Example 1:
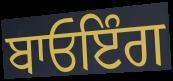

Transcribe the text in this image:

ਬਾਓਇੰਗ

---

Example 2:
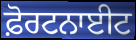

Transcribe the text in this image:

ਫ਼ੋਰਟਨਾਈਟ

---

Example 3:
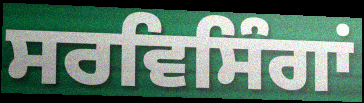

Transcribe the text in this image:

ਸਰਵਿਸਿੰਗਾਂ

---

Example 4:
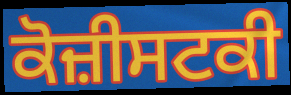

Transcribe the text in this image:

ਕੋਜ਼ੀਸਟਕੀ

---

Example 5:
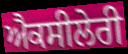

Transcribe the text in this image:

ਐਕਸੀਲੇਰੀ